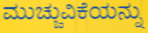
ಮುಚ್ಚುವಿಕೆಯನ್ನು